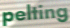
pelting